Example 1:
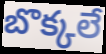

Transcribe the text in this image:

బొక్కలే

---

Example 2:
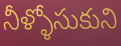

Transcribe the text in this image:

నీళ్ళోసుకుని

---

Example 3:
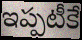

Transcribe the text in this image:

ఇప్పటీకే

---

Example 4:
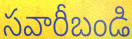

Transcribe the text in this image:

సవారీబండి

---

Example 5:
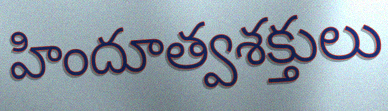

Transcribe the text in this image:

హిందూత్వశక్తులు